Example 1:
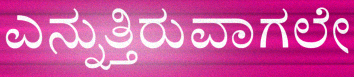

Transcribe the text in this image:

ಎನ್ನುತ್ತಿರುವಾಗಲೇ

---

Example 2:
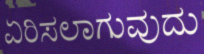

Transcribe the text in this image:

ಏರಿಸಲಾಗುವುದು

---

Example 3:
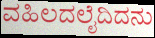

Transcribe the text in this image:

ವಹಿಲದಲೈದಿದನು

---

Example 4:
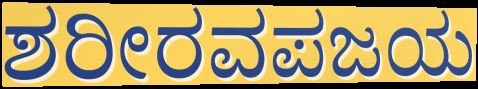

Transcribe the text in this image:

ಶರೀರವಪಜಯ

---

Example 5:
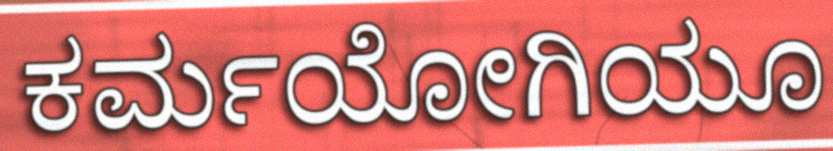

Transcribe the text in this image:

ಕರ್ಮಯೋಗಿಯೂ